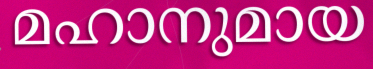
മഹാനുമായ